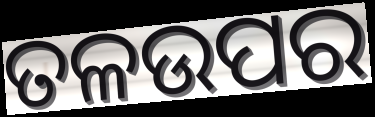
ତଳଉପର